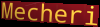
Mecheri